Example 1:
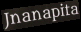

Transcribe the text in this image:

Jnanapita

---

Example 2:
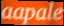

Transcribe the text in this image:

aapale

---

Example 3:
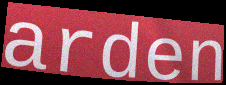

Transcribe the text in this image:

arden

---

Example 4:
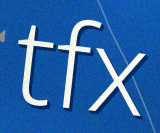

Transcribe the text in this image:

tfx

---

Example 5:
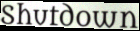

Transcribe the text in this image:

Shutdown